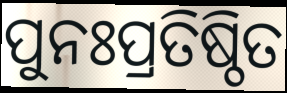
ପୁନଃପ୍ରତିଷ୍ଠିତ